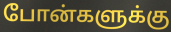
போன்களுக்கு